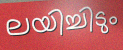
ലയിച്ചിടും